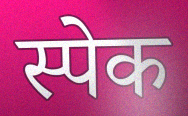
स्पेक